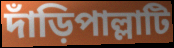
দাঁড়িপাল্লাটি